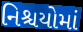
નિશ્ચયોમાં